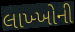
લાખ્ખોની